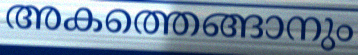
അകത്തെങ്ങാനും